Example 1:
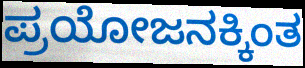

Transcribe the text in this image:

ಪ್ರಯೋಜನಕ್ಕಿಂತ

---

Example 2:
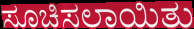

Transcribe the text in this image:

ಸೂಚಿಸಲಾಯಿತು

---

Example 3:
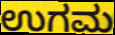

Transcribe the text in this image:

ಉಗಮ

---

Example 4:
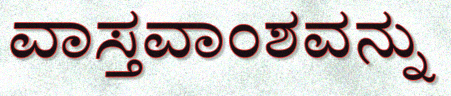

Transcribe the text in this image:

ವಾಸ್ತವಾಂಶವನ್ನು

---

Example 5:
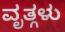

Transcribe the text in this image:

ವೃತ್ಗಳು